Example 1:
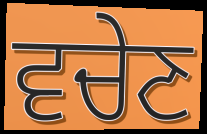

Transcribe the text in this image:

ਵਚੇਣ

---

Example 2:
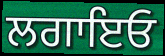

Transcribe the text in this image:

ਲਗਾਇਓ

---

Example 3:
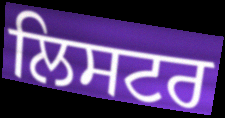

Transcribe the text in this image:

ਲਿਸਟਰ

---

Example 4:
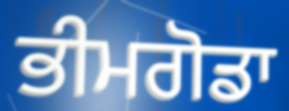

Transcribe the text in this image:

ਭੀਮਗੋਡਾ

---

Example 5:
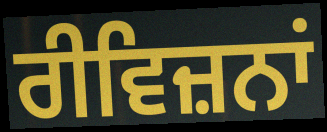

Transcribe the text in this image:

ਰੀਵਿਜ਼ਨਾਂ